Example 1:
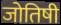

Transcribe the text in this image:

जोतिषी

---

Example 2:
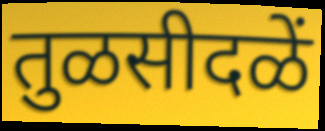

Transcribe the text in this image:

तुळसीदळें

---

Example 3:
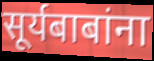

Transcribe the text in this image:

सूर्यबाबांना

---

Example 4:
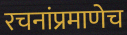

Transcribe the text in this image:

रचनांप्रमाणेच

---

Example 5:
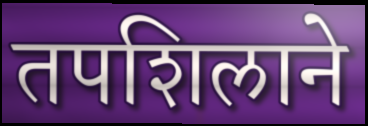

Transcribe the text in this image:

तपशिलाने